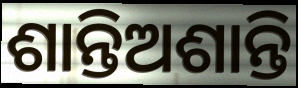
ଶାନ୍ତିଅଶାନ୍ତି